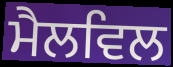
ਮੈਲਵਿਲ